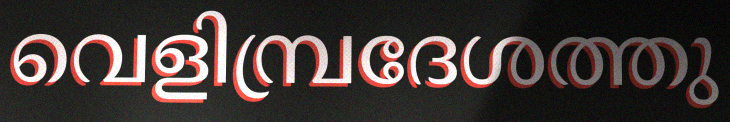
വെളിമ്പ്രദേശത്തു